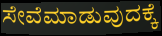
ಸೇವೆಮಾಡುವುದಕ್ಕೆ